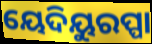
ୟେଦିୟୁରପ୍ପା